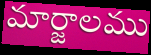
మార్జాలము